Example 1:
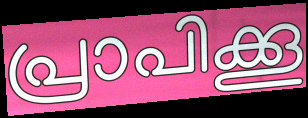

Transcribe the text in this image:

പ്രാപിക്കൂ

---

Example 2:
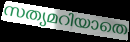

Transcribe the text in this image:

സത്യമറിയാതെ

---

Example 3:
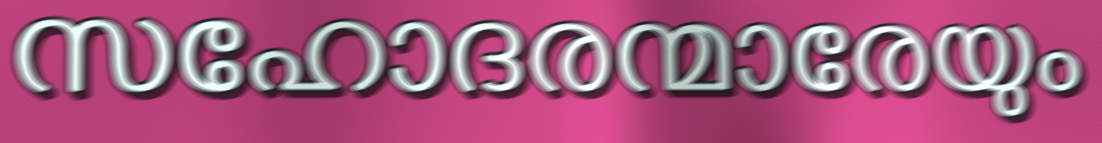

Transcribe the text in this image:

സഹോദരന്മാരേയും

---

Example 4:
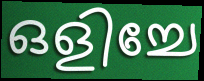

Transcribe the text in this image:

ഒളിച്ചേ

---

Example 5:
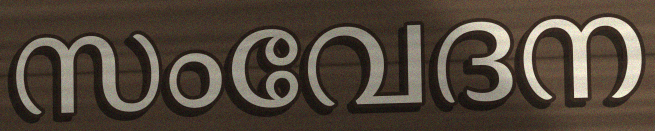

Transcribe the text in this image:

സംവേദന